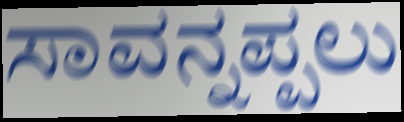
ಸಾವನ್ನಪ್ಪಲು